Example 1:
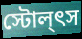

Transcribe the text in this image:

স্টোল্ৎস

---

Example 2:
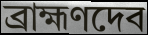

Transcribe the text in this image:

ব্রাহ্মণদেব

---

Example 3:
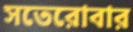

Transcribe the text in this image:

সতেরোবার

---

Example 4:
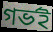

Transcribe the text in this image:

গর্ভই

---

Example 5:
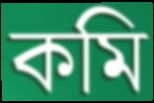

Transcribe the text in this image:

কমি